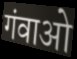
गंवाओ